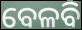
ବେଳବି